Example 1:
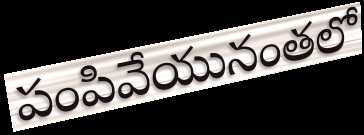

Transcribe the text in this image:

పంపివేయునంతలో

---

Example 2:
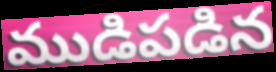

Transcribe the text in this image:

ముడిపడిన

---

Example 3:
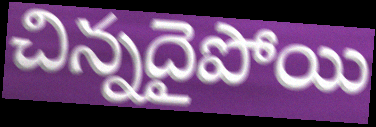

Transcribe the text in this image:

చిన్నదైపోయి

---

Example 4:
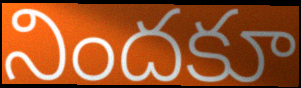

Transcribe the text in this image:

నిందకూ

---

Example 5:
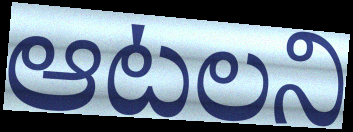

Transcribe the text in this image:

ఆటలని